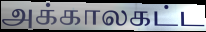
அக்காலகட்ட